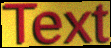
Text